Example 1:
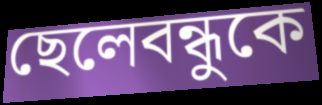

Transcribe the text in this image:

ছেলেবন্ধুকে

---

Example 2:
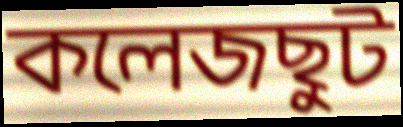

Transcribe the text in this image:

কলেজছুট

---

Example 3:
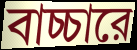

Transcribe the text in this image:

বাচ্চারে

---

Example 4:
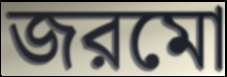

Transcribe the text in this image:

জরমো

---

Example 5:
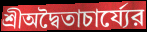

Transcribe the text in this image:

শ্রীঅদ্বৈতাচার্য্যের